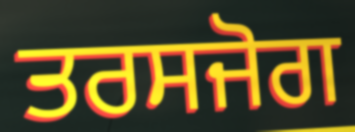
ਤਰਸਜੋਗ